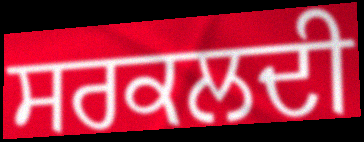
ਸਰਕਲਦੀ